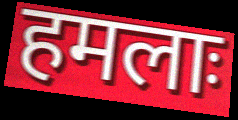
हमलाः